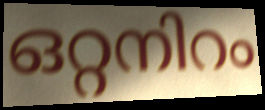
ഒറ്റനിറം